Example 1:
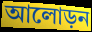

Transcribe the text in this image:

আলোড়ন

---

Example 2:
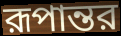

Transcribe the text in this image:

রূপান্তর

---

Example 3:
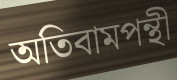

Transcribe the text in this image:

অতিবামপন্থী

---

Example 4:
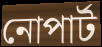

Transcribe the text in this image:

নোপার্ট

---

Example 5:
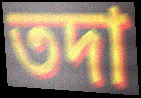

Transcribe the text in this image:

তদা